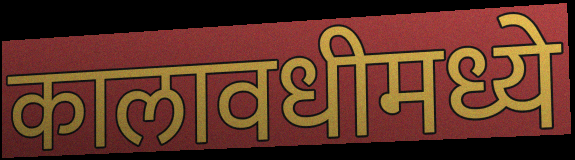
कालावधीमध्ये